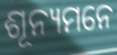
ଶୂନ୍ୟମନେ